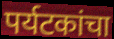
पर्यटकांचा